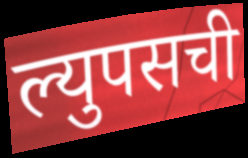
ल्युपसची